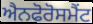
ਐਨਫੋਰੋਸਮੈਂਟ